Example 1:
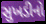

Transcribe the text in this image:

સુખડીનો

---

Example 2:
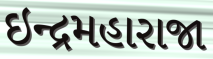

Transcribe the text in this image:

ઇન્દ્રમહારાજા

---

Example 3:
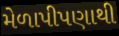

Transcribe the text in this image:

મેળાપીપણાથી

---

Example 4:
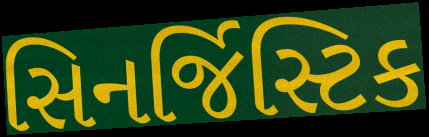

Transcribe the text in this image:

સિનર્જિસ્ટિક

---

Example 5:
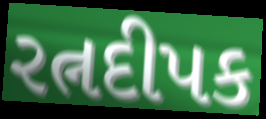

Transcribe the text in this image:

રત્નદીપક